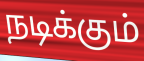
நடிக்கும்